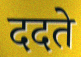
ददते